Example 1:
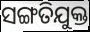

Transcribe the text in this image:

ସଙ୍ଗତିଯୁକ୍ତ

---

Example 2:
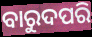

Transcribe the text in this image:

ବାରୁଦପରି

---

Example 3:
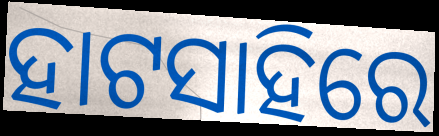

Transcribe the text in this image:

ହାଟସାହିରେ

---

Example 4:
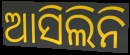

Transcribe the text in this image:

ଆସିଲିନି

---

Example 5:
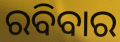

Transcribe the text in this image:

ରବିବାର